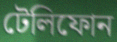
টেলিফোন